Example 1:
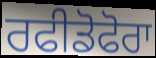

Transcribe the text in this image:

ਰਫੀਡੋਫੋਰਾ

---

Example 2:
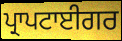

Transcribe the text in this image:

ਪ੍ਰਾਪਟਾਈਗਰ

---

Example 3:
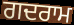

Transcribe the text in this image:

ਗਦਰਾਮ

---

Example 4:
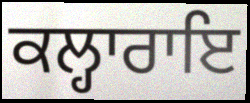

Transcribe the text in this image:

ਕਲ੍ਹਾਰਾਇ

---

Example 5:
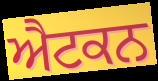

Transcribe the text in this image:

ਐਟਕਨ